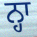
ਨ੍ਹਾ